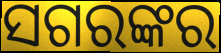
ସଗରଙ୍କର